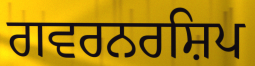
ਗਵਰਨਰਸ਼ਿਪ